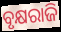
ବୃକ୍ଷରାଜି